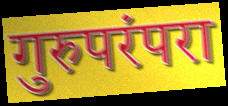
गुरुपरंपरा